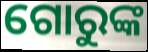
ଗୋରୁଙ୍କ